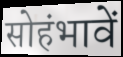
सोहंभावें